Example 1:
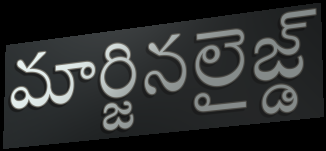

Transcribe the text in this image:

మార్జినలైజ్డ్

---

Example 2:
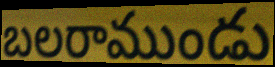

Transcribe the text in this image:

బలరాముండు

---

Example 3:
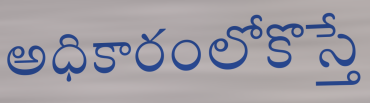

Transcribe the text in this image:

అధికారంలోకొస్తే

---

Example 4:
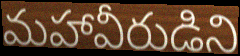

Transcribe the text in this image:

మహావీరుడిని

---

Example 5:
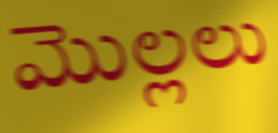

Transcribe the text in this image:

మొల్లలు